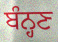
ਬੰਨ੍ਹਣ